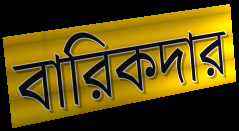
বারিকদার